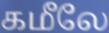
கமீலே